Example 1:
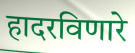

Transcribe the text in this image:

हादरविणारे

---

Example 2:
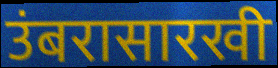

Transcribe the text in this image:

उंबरासारखी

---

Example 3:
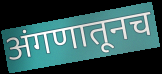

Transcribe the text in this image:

अंगणातूनच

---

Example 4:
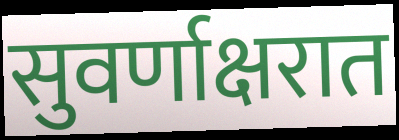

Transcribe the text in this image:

सुवर्णाक्षरात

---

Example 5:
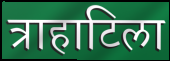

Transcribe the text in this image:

त्राहाटिला